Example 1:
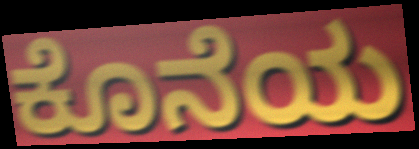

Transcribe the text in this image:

ಕೊನೆಯ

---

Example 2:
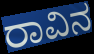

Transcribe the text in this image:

ರಾವಿನ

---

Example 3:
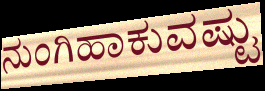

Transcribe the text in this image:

ನುಂಗಿಹಾಕುವಷ್ಟು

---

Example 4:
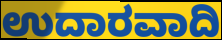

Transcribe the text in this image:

ಉದಾರವಾದಿ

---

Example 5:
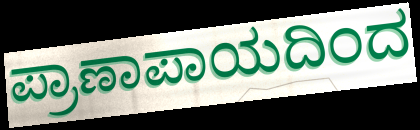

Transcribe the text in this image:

ಪ್ರಾಣಾಪಾಯದಿಂದ